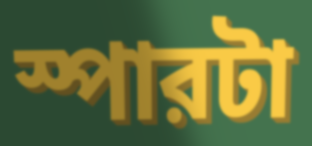
স্পারটা